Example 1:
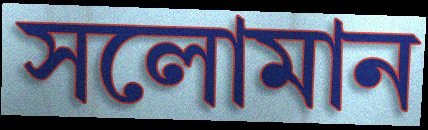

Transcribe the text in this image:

সলোমান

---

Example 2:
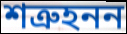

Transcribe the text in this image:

শত্রুহনন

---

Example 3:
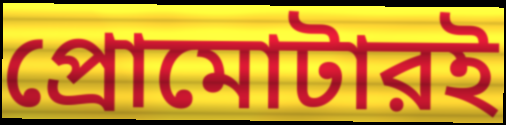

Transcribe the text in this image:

প্রোমোটারই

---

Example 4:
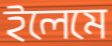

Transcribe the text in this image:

ইলেমে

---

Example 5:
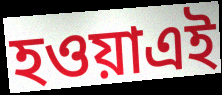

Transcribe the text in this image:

হওয়াএই